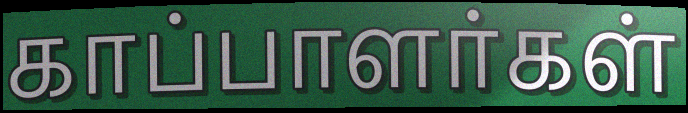
காப்பாளர்கள்